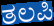
ತಲಪಿ